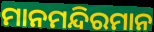
ମାନମନ୍ଦିରମାନ